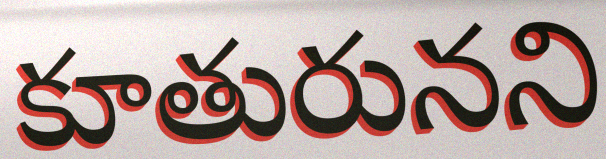
కూతురునని